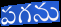
పగను